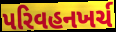
પરિવહનખર્ચ